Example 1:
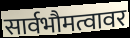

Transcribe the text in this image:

सार्वभौमत्वावर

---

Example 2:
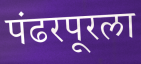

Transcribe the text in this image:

पंढरपूरला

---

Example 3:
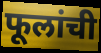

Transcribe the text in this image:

फूलांची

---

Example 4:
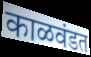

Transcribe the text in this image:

काळवंडत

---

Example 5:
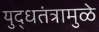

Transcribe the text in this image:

युद्धतंत्रामुळे